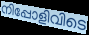
നിപ്പോളിവിടെ